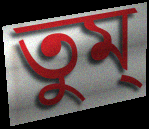
তুম্